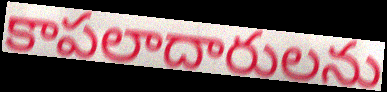
కాపలాదారులను